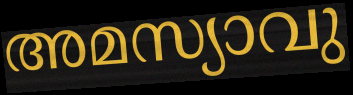
അമസ്യാവു